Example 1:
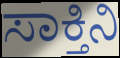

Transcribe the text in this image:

ಸಾಕ್ತಿನಿ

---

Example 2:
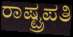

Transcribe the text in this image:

ರಾಷ್ಟ್ರಪತಿ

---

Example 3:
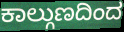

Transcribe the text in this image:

ಕಾಲ್ಗುಣದಿಂದ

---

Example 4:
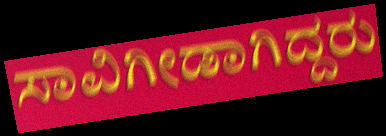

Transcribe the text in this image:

ಸಾವಿಗೀಡಾಗಿದ್ದರು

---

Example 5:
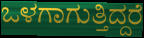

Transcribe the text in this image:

ಒಳಗಾಗುತ್ತಿದ್ದರೆ